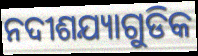
ନଦୀଶଯ୍ୟାଗୁଡିକ